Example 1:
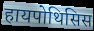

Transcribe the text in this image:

हायपोथिसिस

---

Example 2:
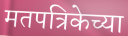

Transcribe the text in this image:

मतपत्रिकेच्या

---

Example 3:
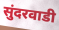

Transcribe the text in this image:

सुंदरवाडी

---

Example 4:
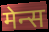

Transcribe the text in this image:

मेन्स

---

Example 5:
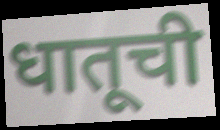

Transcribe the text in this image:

धातूची